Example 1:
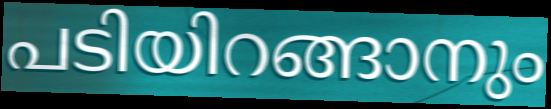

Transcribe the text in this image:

പടിയിറങ്ങാനും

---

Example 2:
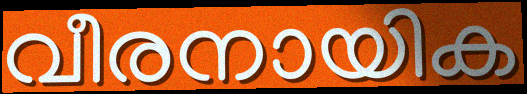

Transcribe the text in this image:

വീരനായിക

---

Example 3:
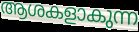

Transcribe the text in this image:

ആശകളാകുന്ന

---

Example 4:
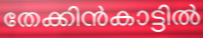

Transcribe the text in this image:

തേക്കിൻകാട്ടിൽ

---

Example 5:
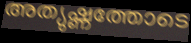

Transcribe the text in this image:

അത്യുഷ്ണത്തോടെ